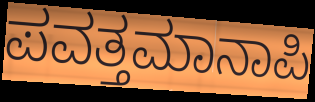
ಪವತ್ತಮಾನಾಪಿ